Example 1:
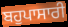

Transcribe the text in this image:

ਬਹੁਪਾਸਾਰੀ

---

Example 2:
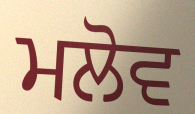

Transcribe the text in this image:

ਮਲੋਵ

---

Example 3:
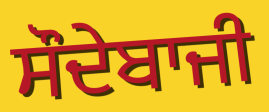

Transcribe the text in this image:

ਸੌਦੇਬਾਜੀ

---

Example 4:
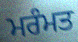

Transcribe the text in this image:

ਮਰੰਮਤ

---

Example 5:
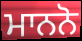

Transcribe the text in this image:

ਮਾਨਨੋ